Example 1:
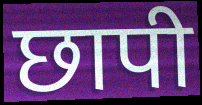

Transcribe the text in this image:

छापी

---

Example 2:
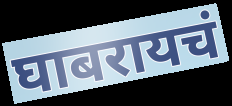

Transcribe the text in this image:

घाबरायचं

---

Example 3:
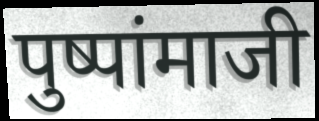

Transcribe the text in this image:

पुष्पांमाजी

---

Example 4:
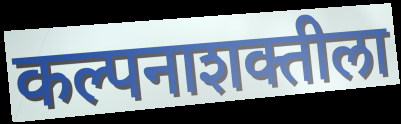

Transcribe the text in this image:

कल्पनाशक्तीला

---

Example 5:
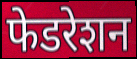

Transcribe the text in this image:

फेडरेशन